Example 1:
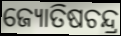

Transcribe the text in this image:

ଜ୍ୟୋତିଷଚନ୍ଦ୍ର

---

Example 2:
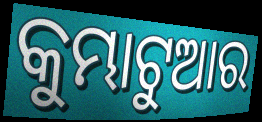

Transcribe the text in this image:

କୁମ୍ଭାଟୁଆର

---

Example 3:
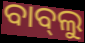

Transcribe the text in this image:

ବାବ୍‍ଲୁ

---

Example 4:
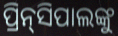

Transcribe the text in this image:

ପ୍ରିନ୍‌ସିପାଲଙ୍କୁ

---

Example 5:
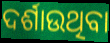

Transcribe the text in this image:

ଦର୍ଶାଉଥିବା